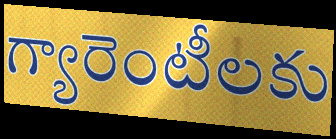
గ్యారెంటీలకు